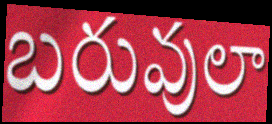
బరువులా